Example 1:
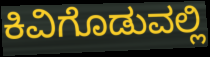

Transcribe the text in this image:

ಕಿವಿಗೊಡುವಲ್ಲಿ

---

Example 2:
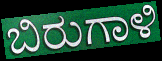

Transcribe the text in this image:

ಬಿರುಗಾಳಿ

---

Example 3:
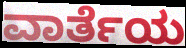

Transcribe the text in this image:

ವಾರ್ತೆಯ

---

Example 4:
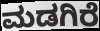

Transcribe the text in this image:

ಮಡಗಿರೆ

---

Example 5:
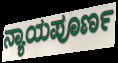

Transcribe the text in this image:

ನ್ಯಾಯಪೂರ್ಣ